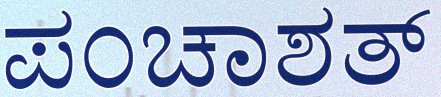
ಪಂಚಾಶತ್